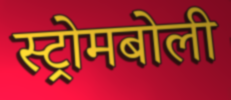
स्ट्रोमबोली